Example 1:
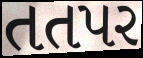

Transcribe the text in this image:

તતપર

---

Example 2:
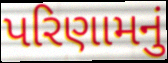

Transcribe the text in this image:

પરિણામનું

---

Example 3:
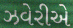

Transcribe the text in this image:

ઝવેરીએ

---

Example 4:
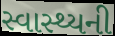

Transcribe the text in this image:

સ્વાસ્થ્યની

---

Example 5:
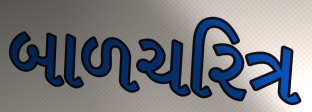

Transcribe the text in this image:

બાળચરિત્ર